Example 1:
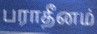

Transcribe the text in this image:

பராதீனம்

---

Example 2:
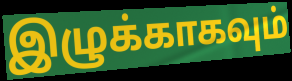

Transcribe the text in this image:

இழுக்காகவும்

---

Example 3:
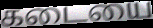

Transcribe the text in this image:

கடையை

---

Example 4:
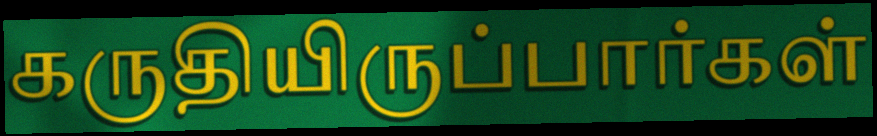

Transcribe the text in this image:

கருதியிருப்பார்கள்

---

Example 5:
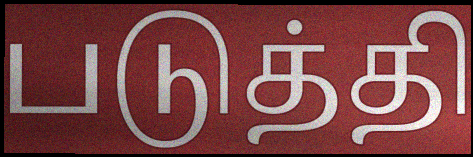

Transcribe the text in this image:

படுத்தி